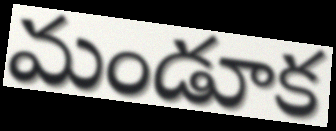
మండూక